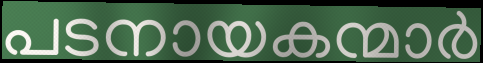
പടനായകന്മാർ